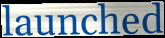
launched